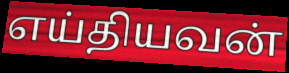
எய்தியவன்